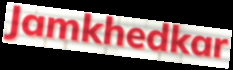
Jamkhedkar